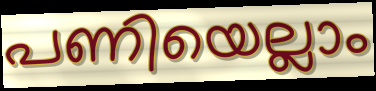
പണിയെല്ലാം